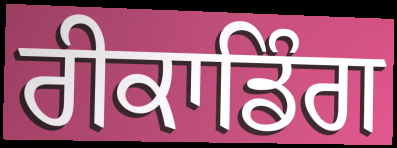
ਰੀਕਾਡਿੰਗ